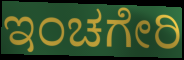
ಇಂಚಗೇರಿ